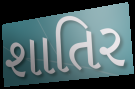
શાતિર